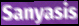
Sanyasis